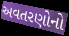
અવતરણોનો